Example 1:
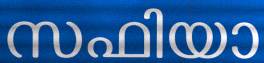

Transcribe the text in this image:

സഫിയാ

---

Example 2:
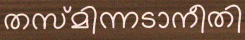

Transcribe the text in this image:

തസ്മിന്നടാനീതി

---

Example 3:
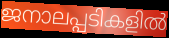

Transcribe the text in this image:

ജനാലപ്പടികളിൽ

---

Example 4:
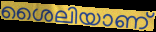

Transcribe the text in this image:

ശൈലിയാണ്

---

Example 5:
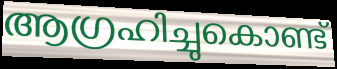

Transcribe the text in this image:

ആഗ്രഹിച്ചുകൊണ്ട്